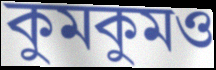
কুমকুমও